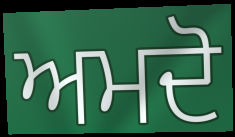
ਅਮਦੋ